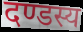
दण्डस्य